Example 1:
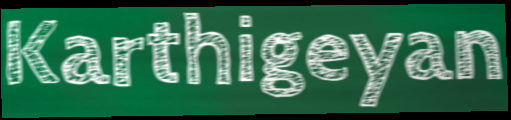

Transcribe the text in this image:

Karthigeyan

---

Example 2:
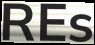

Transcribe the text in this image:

REs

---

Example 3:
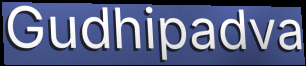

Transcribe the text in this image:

Gudhipadva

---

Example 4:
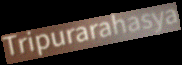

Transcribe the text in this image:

Tripurarahasya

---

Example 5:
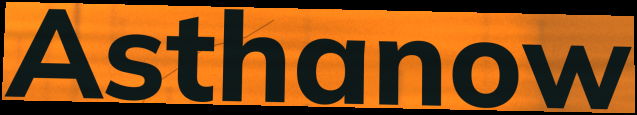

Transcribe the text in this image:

Asthanow